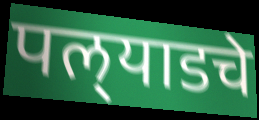
पल्याडचे